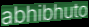
abhibhuto